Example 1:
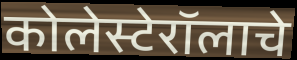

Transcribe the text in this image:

कोलेस्टेरॉलाचे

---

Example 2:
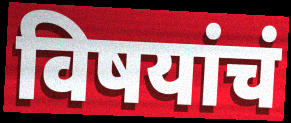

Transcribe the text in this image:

विषयांचं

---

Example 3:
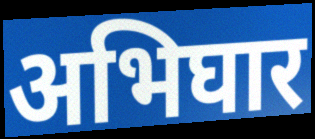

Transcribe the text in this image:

अभिघार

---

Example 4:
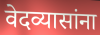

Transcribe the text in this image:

वेदव्यासांना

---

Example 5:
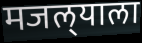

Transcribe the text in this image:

मजल्याला